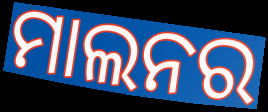
ମାଲନର